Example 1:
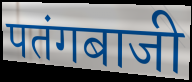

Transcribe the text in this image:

पतंगबाजी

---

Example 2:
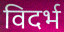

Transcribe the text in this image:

विदर्भ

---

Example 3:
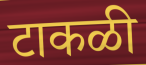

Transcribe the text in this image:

टाकळी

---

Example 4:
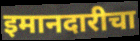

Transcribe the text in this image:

इमानदारीचा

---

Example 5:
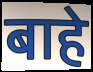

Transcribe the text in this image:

बाहे